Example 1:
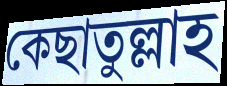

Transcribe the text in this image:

কেছাতুল্লাহ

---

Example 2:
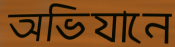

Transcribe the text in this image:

অভিযানে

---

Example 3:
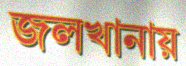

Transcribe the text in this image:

জলখানায়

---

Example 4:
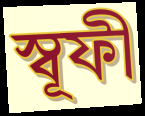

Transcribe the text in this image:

স্বূফী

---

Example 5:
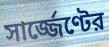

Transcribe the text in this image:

সার্জ্জেণ্টের